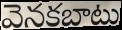
వెనకబాటు